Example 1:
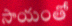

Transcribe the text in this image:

సాయంతో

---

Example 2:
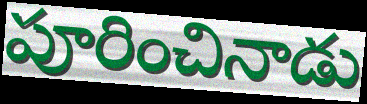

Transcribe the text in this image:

పూరించినాడు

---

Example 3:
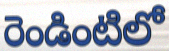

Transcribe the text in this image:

రెండింటిలో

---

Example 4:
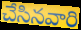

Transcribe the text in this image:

చేసినవారి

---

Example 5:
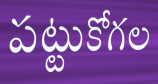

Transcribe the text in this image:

పట్టుకోగల